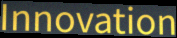
Innovation